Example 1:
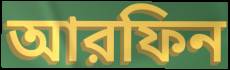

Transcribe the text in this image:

আরফিন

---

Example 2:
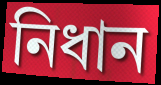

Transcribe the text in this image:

নিধান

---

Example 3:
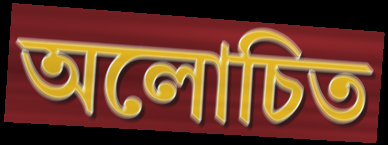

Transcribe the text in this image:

অলোচিত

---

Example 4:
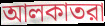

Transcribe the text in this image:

আলকাতরা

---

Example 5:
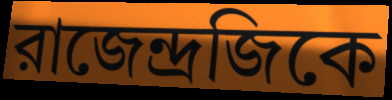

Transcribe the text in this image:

রাজেন্দ্রজিকে